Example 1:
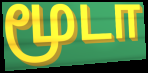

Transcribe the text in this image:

மூடா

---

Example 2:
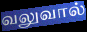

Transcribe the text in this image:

வலுவால்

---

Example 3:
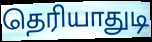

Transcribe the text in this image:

தெரியாதுடி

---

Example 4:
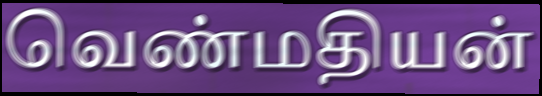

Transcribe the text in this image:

வெண்மதியன்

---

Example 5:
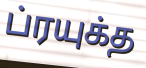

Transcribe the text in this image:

ப்ரயுக்த